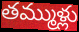
తమ్ముళ్లు